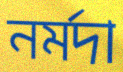
নর্মদা